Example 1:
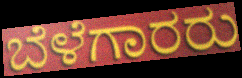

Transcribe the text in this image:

ಬೆಳೆಗಾರರು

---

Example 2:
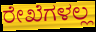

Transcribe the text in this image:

ರೇಖೆಗಳಲ್ಲ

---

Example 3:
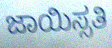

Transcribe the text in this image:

ಜಾಯಿಸ್ಸತಿ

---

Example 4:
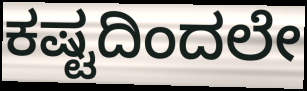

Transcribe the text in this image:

ಕಷ್ಟದಿಂದಲೇ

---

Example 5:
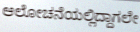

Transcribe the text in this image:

ಆಲೋಚನೆಯಲ್ಲಿದ್ದಾಗಲೇ